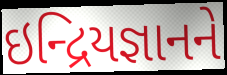
ઇન્દ્રિયજ્ઞાનને